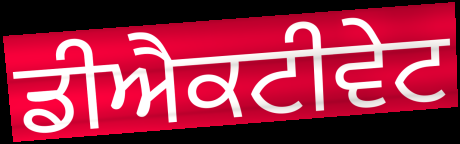
ਡੀਐਕਟੀਵੇਟ